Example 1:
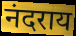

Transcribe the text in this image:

नंदराय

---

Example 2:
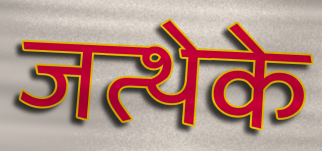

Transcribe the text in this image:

जत्थेके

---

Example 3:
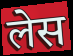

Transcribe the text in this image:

लेस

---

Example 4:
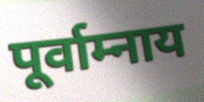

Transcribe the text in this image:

पूर्वाम्नाय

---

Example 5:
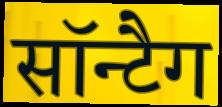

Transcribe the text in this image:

सॉन्टैग